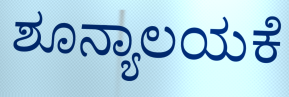
ಶೂನ್ಯಾಲಯಕೆ